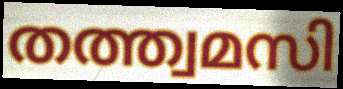
തത്ത്വമസി